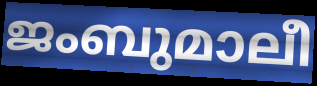
ജംബുമാലീ